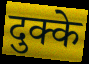
दुक्के